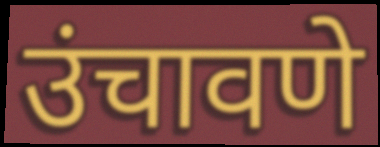
उंचावणे